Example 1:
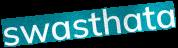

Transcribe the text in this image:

swasthata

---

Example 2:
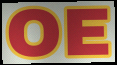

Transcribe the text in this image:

OE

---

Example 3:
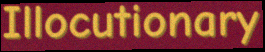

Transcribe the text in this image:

Illocutionary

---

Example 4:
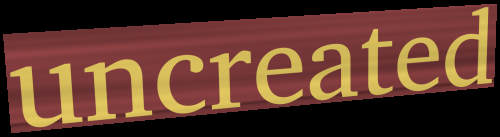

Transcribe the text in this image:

uncreated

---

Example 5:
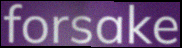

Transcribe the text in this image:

forsake